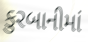
કુરબાનીમાં